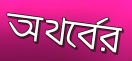
অথর্বের